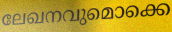
ലേഖനവുമൊക്കെ